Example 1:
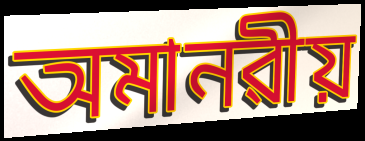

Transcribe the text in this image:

অমানৱীয়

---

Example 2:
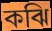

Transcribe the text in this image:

কঝি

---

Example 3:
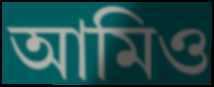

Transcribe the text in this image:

আমিও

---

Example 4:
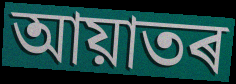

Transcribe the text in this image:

আয়াতৰ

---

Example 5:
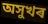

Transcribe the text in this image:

অসুখৰ